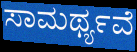
ಸಾಮರ್ಥ್ಯವೆ